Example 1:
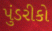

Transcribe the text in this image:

પુંડરીકો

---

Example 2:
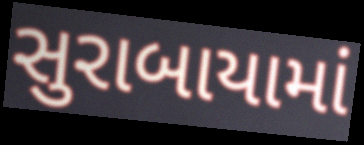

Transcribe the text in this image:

સુરાબાયામાં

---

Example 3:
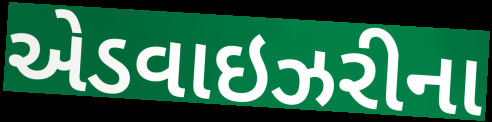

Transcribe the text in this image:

એડવાઇઝરીના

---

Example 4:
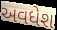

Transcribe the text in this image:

અવધેશ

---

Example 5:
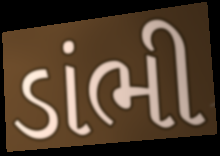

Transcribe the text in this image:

ડાંભી